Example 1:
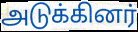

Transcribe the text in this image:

அடுக்கினர்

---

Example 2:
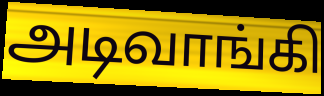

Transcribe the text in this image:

அடிவாங்கி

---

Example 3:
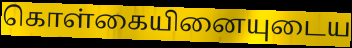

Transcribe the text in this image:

கொள்கையினையுடைய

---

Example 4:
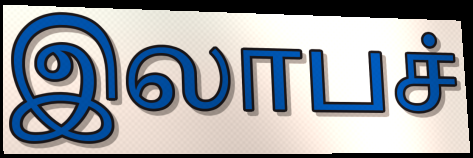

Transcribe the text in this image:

இலாபச்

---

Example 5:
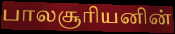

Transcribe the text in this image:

பாலசூரியனின்